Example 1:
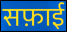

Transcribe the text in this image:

सफ़ाई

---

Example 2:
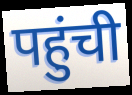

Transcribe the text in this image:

पहुंची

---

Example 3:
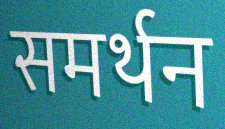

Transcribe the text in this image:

समर्थन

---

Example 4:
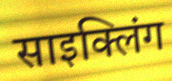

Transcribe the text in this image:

साइक्लिंग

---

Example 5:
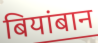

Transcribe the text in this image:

बियांबान